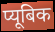
प्यूबिक